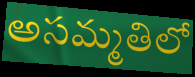
అసమ్మతిలో